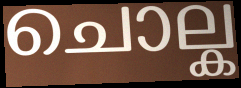
ചൊല്ക